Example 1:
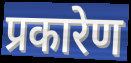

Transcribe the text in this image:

प्रकारेण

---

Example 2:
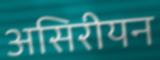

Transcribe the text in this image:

असिरीयन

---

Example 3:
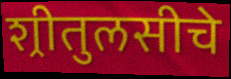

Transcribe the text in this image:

श्रीतुलसीचे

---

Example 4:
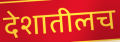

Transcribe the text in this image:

देशातीलच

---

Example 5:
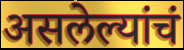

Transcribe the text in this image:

असलेल्यांचं